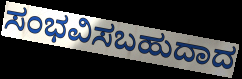
ಸಂಭವಿಸಬಹುದಾದ